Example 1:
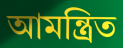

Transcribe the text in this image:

আমন্ত্ৰিত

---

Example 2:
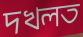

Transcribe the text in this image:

দখলত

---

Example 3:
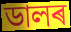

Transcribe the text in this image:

ডালৰ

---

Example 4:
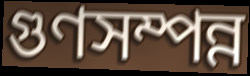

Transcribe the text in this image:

গুণসম্পন্ন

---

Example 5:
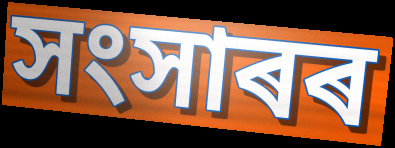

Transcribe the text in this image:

সংসাৰৰ